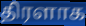
திரளாக